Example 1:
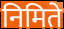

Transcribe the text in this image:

निमिते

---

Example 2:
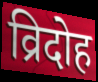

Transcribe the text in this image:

व्रिदोह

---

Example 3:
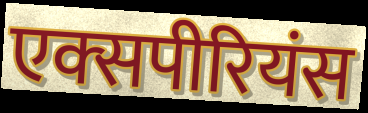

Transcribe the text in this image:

एक्‍सपीरियंस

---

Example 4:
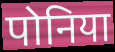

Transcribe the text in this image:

पोनिया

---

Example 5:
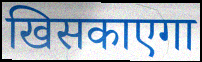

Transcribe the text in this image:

खिसकाएगा